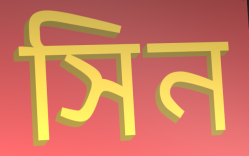
সিন